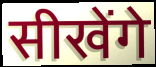
सीखेंगे